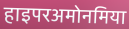
हाइपरअमोनमिया